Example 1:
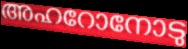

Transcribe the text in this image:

അഹറോനോടു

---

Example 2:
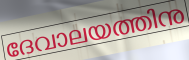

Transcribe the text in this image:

ദേവാലയത്തിനു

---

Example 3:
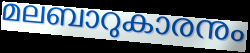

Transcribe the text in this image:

മലബാറുകാരനും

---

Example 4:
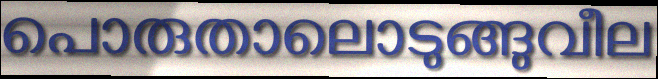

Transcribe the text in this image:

പൊരുതാലൊടുങ്ങുവീല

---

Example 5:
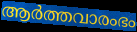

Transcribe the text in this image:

ആർത്തവാരംഭം